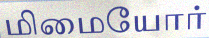
மிமையோர்